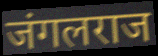
जंगलराज